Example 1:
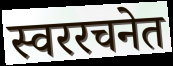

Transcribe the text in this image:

स्वररचनेत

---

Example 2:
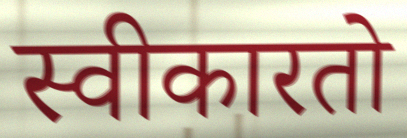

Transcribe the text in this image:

स्वीकारतो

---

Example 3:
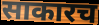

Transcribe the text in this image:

साकारच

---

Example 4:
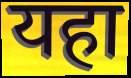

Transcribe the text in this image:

यहा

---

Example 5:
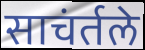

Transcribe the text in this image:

साचंर्तले